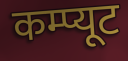
कम्प्यूट